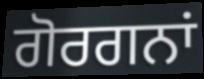
ਗੋਰਗਨਾਂ